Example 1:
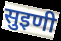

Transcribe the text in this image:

सुइणी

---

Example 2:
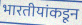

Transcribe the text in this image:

भारतीयांकडून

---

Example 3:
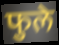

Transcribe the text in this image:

फुले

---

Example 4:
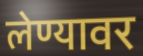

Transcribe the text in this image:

लेण्यावर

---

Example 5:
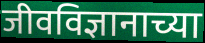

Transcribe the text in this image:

जीवविज्ञानाच्या